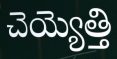
చెయ్యెత్తి